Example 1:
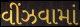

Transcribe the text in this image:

વીંઝવામાં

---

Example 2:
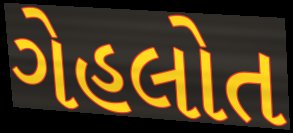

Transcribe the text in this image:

ગેહલોત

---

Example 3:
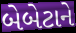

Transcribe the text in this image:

બેબેટાને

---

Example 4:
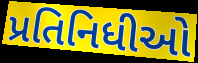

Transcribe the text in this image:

પ્રતિનિધીઓ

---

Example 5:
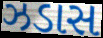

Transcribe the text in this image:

ઝડાસ